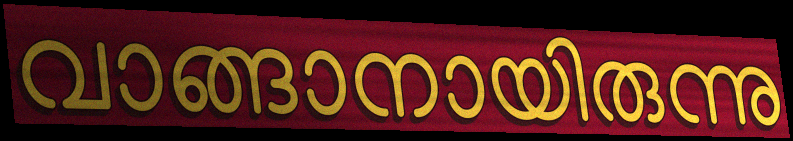
വാങ്ങാനായിരുന്നു